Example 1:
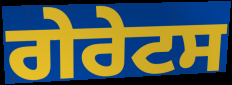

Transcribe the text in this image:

ਗੇਰੇਟਸ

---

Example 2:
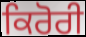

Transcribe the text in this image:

ਕਿਰੋਰੀ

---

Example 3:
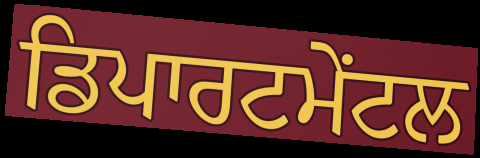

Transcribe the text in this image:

ਡਿਪਾਰਟਮੇਂਟਲ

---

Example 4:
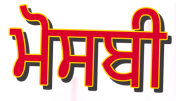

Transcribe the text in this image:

ਮੋਸਬੀ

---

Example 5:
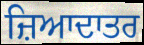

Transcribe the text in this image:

ਜ਼ਿਆਦਾਤਰ